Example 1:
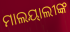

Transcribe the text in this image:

ମାଲୟାଲୀଙ୍କ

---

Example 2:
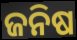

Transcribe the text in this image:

ଜନିଷ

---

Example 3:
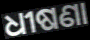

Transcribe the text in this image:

ଧୀଷଣା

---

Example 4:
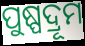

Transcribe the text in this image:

ପୁଷ୍ପଦ୍ରୂମ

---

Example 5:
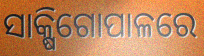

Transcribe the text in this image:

ସାକ୍ଷିଗୋପାଳରେ